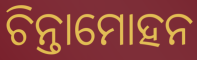
ଚିନ୍ତାମୋହନ